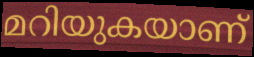
മറിയുകയാണ്